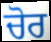
ਚੋਰ